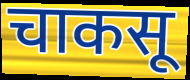
चाकसू